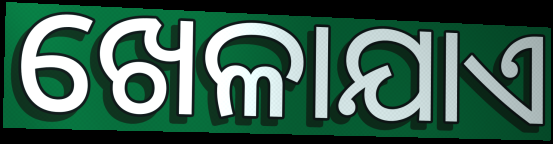
ଖେଳାଯାଏ